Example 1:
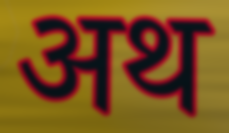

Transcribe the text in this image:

अथ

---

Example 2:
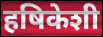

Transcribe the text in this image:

हषिकेशी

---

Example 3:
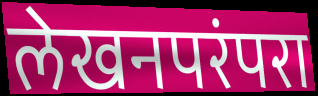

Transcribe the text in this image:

लेखनपरंपरा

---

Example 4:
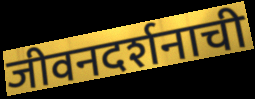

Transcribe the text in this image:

जीवनदर्शनाची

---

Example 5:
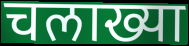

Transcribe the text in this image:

चलाख्या